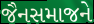
જૈનસમાજને